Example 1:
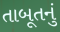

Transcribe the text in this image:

તાબૂતનું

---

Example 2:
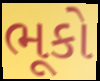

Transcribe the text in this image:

ભૂકો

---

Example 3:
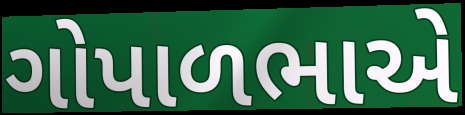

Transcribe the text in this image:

ગોપાળભાએ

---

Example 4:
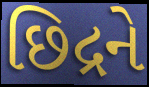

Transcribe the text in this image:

છિદ્રને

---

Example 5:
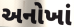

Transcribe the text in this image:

અનોખાં